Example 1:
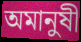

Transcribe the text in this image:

অমানুষী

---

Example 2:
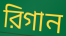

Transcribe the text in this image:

রিগান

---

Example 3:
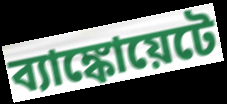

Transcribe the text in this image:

ব্যাঙ্কোয়েটে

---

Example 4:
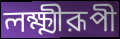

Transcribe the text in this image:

লক্ষ্মীরূপী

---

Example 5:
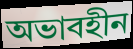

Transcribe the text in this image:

অভাবহীন